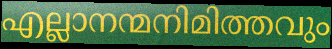
എല്ലാനന്മനിമിത്തവും